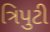
ત્રિપુટી